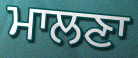
ਮਾਲਣਾ